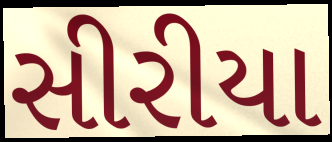
સીરીયા